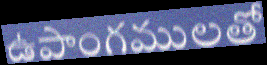
ఉపాంగములతో